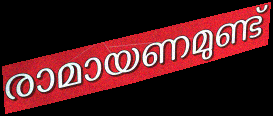
രാമായണമുണ്ട്